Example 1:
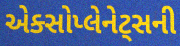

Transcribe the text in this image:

એક્સોપ્લેનેટ્સની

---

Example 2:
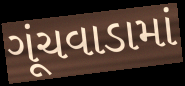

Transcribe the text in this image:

ગૂંચવાડામાં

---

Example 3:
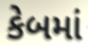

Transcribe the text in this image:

કેબમાં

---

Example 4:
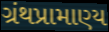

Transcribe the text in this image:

ગ્રંથપ્રામાણ્ય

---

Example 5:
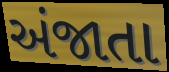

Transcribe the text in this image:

અંજાતા